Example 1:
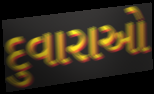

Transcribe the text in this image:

દુવારાઓ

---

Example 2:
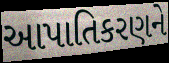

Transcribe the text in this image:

આપાતિકરણને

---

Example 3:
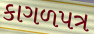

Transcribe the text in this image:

કાગળપત્ર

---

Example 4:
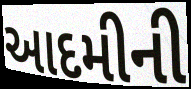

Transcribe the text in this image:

આદમીની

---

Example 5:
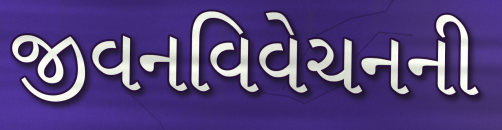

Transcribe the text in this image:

જીવનવિવેચનની